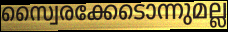
സ്വൈരക്കേടൊന്നുമല്ല